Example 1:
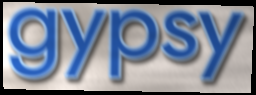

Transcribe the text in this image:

gypsy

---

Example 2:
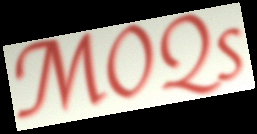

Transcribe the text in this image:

MOQs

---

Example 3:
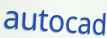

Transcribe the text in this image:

autocad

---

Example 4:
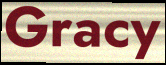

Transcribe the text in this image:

Gracy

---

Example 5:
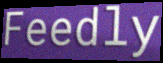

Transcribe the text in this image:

Feedly